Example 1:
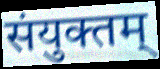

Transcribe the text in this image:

संयुक्तम्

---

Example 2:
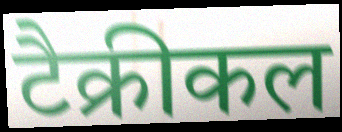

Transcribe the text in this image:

टैक्रीकल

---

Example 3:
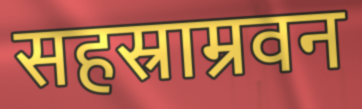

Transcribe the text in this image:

सहस्राम्रवन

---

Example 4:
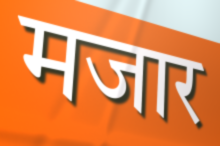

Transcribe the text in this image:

मजार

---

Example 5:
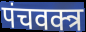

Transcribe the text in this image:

पंचवक्त्र